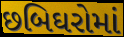
છબિઘરોમાં